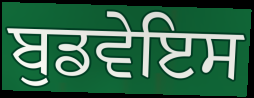
ਬੁਡਵੇਇਸ